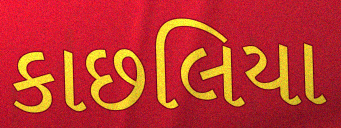
કાછલિયા